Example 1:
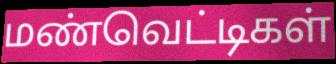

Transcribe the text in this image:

மண்வெட்டிகள்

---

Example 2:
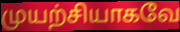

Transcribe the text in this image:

முயற்சியாகவே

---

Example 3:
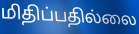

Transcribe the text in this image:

மிதிப்பதில்லை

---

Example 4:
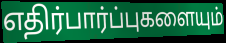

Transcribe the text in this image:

எதிர்பார்ப்புகளையும்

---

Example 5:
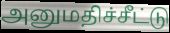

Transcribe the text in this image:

அனுமதிச்சீட்டு